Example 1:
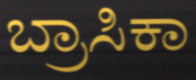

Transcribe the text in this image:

ಬ್ರಾಸಿಕಾ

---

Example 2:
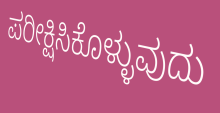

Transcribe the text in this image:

ಪರೀಕ್ಷಿಸಿಕೊಳ್ಳುವುದು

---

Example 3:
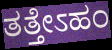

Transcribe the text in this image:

ತತ್ತೇಽಹಂ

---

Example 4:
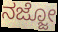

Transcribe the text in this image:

ನಜ್ಜೋ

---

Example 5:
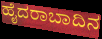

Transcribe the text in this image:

ಹೈದರಾಬಾದಿನ